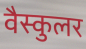
वैस्कुलर